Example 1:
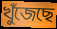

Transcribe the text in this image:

খুঁজেছে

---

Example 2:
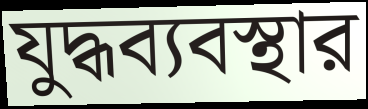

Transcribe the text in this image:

যুদ্ধব্যবস্থার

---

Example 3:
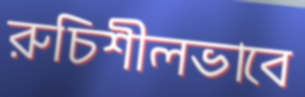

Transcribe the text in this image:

রুচিশীলভাবে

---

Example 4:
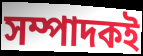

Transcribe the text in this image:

সম্পাদকই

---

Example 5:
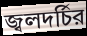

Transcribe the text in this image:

জ্বলদর্চির